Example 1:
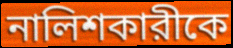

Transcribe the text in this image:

নালিশকারীকে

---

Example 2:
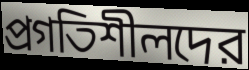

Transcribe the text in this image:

প্রগতিশীলদের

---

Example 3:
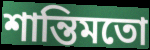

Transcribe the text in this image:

শান্তিমতো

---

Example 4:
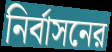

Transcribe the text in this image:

নির্বাসনের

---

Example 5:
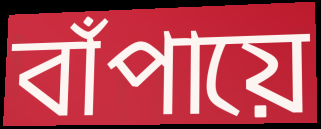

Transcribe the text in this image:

বাঁপায়ে